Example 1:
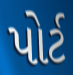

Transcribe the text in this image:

પોર્ટ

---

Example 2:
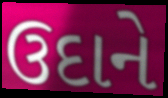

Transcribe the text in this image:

ઉદાને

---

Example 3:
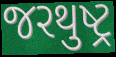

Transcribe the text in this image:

જરથુષ્ટ્ર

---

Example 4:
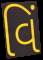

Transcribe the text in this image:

વિં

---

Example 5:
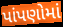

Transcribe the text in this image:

પાંપણોમાં